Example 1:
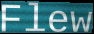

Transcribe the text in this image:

Flew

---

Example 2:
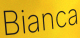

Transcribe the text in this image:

Bianca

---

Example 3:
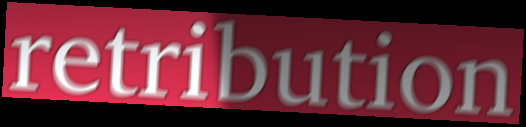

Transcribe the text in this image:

retribution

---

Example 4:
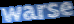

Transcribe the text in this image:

warse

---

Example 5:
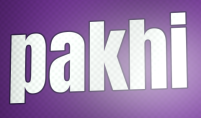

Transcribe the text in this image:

pakhi